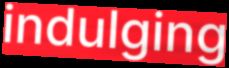
indulging